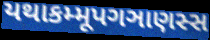
યથાકમ્મૂપગઞાણસ્સ